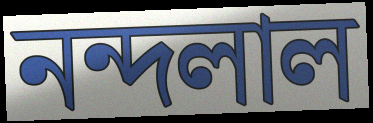
নন্দলাল